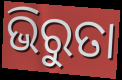
ଭିରୁତା